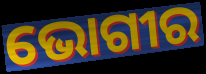
ଭୋଗୀର